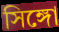
সিঙ্গো